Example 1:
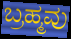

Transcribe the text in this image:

ಬ್ರಹ್ಮವು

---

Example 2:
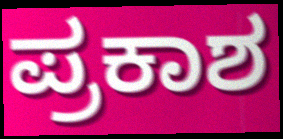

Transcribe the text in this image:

ಪ್ರಕಾಶ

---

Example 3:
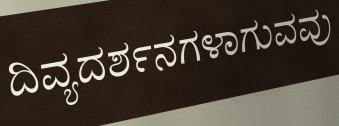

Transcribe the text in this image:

ದಿವ್ಯದರ್ಶನಗಳಾಗುವವು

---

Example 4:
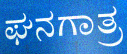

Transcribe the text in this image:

ಘನಗಾತ್ರ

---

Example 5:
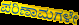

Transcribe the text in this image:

ಪರಿಣಾಮಗಳೇ